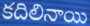
కదిలినాయి